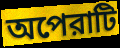
অপেরাটি